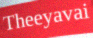
Theeyavai